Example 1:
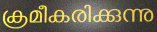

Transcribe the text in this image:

ക്രമീകരിക്കുന്നു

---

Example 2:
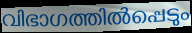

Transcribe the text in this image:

വിഭാഗത്തിൽപ്പെടും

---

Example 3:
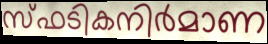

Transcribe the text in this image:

സ്ഫടികനിർമാണ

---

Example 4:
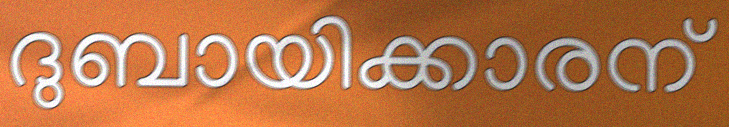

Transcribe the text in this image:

ദുബായിക്കാരന്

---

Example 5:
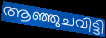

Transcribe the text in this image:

ആഞ്ഞുചവിട്ടി